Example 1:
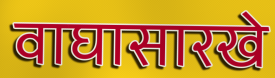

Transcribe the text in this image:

वाघासारखे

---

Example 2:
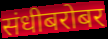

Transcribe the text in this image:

संधीबरोबर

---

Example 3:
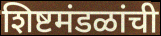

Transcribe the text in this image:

शिष्टमंडळांची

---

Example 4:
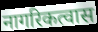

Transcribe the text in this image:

नागरिकत्वास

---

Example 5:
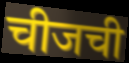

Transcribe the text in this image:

चीजची